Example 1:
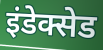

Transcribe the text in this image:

इंडेक्सेड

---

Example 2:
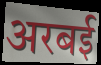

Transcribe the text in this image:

अरबई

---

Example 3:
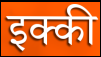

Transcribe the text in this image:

इक्की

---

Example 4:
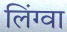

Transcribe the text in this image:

लिंग्वा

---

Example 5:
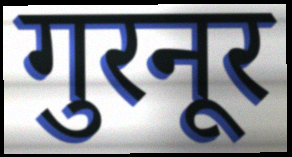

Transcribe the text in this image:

गुरनूर